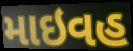
માઇવહ